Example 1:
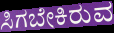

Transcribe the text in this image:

ಸಿಗಬೇಕಿರುವ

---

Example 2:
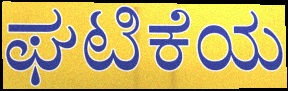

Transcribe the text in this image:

ಘಟಿಕೆಯ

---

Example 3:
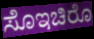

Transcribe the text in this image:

ಸೊಇಚಿರೊ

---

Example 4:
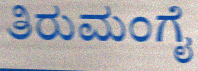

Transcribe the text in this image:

ತಿರುಮಂಗೈ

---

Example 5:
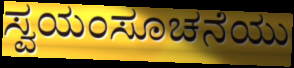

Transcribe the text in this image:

ಸ್ವಯಂಸೂಚನೆಯು